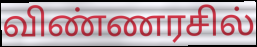
விண்ணரசில்